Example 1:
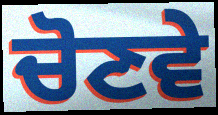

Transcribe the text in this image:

ਚੋਣਵੇ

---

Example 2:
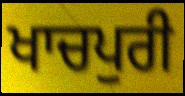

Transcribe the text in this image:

ਖਾਚਪੁਰੀ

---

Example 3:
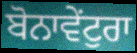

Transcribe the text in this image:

ਬੋਨਾਵੇਂਟੁਰਾ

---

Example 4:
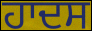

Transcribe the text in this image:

ਹਾਦਸ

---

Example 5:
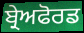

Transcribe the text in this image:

ਬ੍ਰੇਅਫੋਰਡ